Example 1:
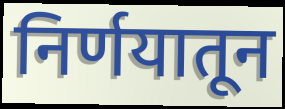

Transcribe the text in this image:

निर्णयातून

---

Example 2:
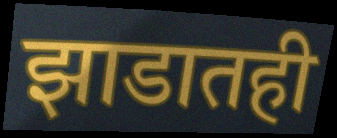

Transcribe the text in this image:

झाडातही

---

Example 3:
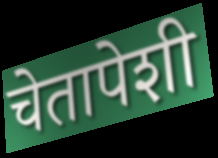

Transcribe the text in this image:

चेतापेशी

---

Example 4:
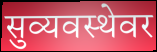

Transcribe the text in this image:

सुव्यवस्थेवर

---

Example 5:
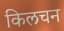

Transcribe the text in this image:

किलचन